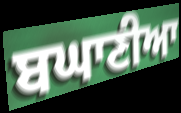
ਬਘਾਣੀਆ